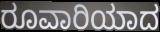
ರೂವಾರಿಯಾದ